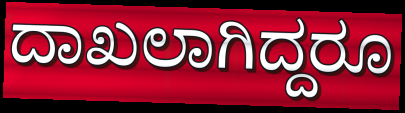
ದಾಖಲಾಗಿದ್ದರೂ